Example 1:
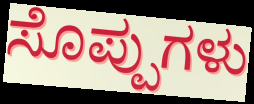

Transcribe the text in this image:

ಸೊಪ್ಪುಗಳು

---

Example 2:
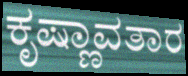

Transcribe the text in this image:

ಕೃಷ್ಣಾವತಾರ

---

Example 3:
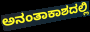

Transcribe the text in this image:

ಅನಂತಾಕಾಶದಲ್ಲಿ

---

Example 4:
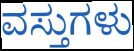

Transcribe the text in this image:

ವಸ್ತುಗಳು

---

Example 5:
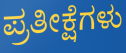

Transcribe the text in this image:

ಪ್ರತೀಕ್ಷೆಗಳು